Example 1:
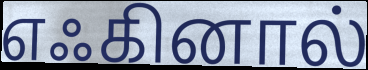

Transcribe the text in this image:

எஃகினால்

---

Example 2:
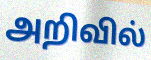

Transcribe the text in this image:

அறிவில்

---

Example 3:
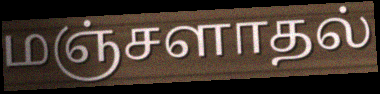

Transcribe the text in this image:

மஞ்சளாதல்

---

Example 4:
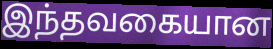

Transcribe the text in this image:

இந்தவகையான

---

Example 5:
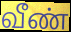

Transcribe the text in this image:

வீண்